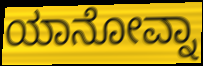
ಯಾನೋವ್ನಾ